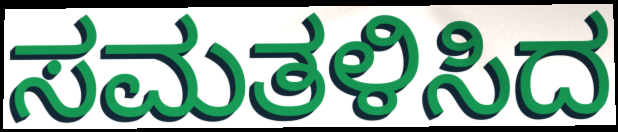
ಸಮತಳಿಸಿದ